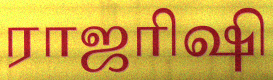
ராஜரிஷி